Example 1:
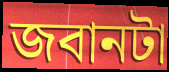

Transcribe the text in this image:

জবানটা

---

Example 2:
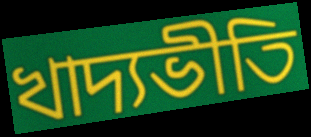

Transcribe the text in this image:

খাদ্যভীতি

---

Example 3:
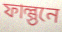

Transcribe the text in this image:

ফাল্গুনে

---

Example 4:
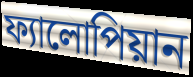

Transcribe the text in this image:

ফ্যালোপিয়ান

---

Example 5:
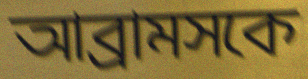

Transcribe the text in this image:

আব্রামসকে